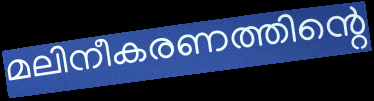
മലിനീകരണത്തിന്റെ